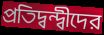
প্রতিদ্বন্দ্বীদের